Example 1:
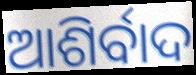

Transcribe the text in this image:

ଆଶିର୍ବାଦ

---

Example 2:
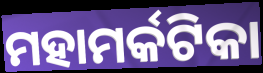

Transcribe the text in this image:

ମହାମର୍କଟିକା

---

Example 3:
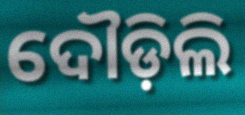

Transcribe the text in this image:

ଦୌଡ଼ିଲି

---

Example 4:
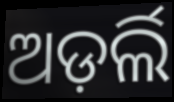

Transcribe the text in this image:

ଅଡ଼ର୍ଲି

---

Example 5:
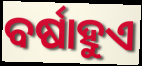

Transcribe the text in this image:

ବର୍ଷାହୁଏ